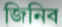
জিনিব